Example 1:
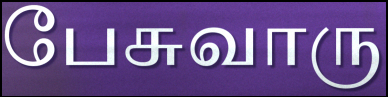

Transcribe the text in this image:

பேசுவாரு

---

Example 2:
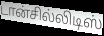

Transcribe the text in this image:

டான்சில்லிடிஸ்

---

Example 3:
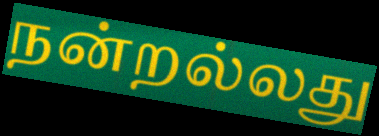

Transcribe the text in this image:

நன்றல்லது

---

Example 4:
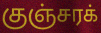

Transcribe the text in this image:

குஞ்சரக்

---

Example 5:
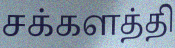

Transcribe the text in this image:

சக்களத்தி